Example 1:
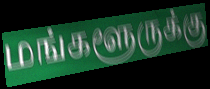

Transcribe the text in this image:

மங்களூருக்கு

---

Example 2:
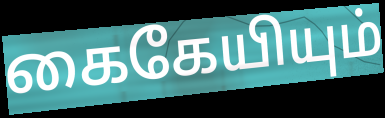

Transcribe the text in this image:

கைகேயியும்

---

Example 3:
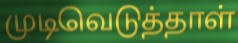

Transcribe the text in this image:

முடிவெடுத்தாள்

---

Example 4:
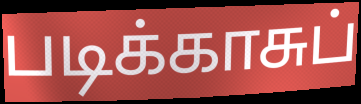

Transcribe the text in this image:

படிக்காசுப்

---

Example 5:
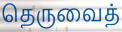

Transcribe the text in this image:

தெருவைத்